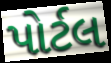
પોર્ટલ